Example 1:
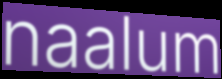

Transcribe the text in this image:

naalum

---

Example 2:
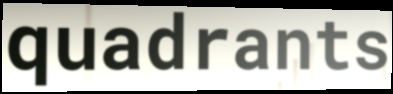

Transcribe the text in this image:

quadrants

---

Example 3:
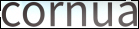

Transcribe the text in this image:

cornua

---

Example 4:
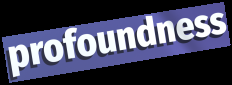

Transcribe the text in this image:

profoundness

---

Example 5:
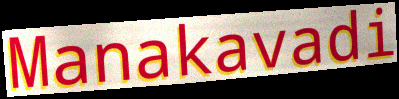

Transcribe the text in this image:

Manakavadi